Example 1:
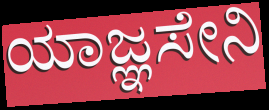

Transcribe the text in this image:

ಯಾಜ್ಞಸೇನಿ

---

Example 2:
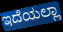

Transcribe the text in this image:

ಇದೆಯಲ್ಲಾ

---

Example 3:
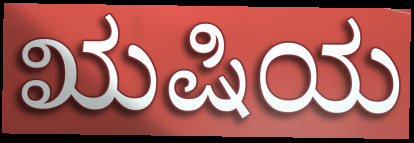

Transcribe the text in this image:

ಋಷಿಯ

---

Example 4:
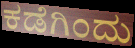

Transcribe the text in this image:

ಕಡೆಗಿಂದು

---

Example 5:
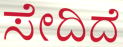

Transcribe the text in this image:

ಸೇದಿದೆ